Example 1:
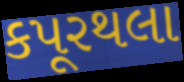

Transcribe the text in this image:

કપૂરથલા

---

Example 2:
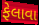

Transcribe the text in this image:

ફેલાવા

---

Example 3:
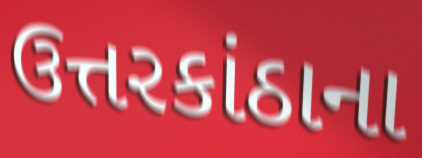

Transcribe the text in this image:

ઉત્તરકાંઠાના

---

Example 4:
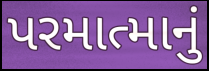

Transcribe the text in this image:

પરમાત્માનું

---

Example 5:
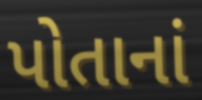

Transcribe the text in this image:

પોતાનાં